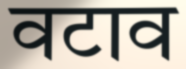
वटाव